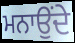
ਮਨਾਉਂਦੇ